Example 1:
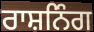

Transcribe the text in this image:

ਰਾਸ਼ਨਿੰਗ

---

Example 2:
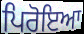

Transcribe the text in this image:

ਪਿਰੋਇਆ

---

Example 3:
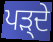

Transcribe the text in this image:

ਪੜ੍ਦੇ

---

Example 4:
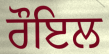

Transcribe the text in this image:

ਰੌਇਲ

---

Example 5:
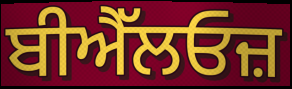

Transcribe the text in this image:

ਬੀਐੱਲਓਜ਼